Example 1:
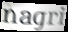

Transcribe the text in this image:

nagri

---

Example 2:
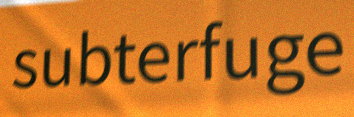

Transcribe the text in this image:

subterfuge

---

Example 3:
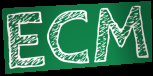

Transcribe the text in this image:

ECM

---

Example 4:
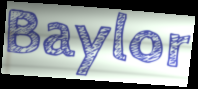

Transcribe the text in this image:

Baylor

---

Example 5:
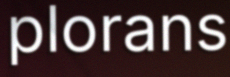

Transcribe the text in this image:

plorans